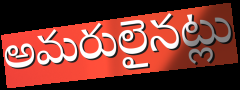
అమరులైనట్లు